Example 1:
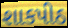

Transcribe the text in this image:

શાકપીઠ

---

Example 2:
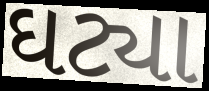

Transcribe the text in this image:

ઘટ્યા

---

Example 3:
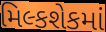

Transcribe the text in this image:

મિલ્કશેકમાં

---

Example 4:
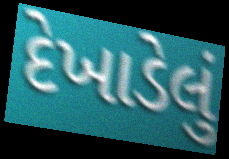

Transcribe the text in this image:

દેખાડેલું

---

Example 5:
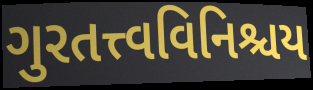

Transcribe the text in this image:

ગુરતત્ત્વવિનિશ્ચય